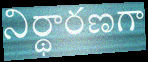
నిర్థారణగా